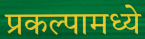
प्रकल्पामध्ये